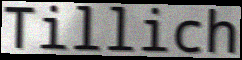
Tillich